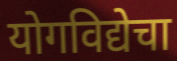
योगविद्येचा